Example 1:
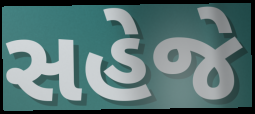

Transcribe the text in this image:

સહેજે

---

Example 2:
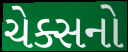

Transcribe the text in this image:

ચેક્સનો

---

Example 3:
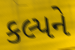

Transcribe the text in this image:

કલ્પને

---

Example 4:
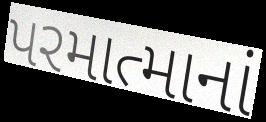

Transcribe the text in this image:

પરમાત્માનાં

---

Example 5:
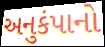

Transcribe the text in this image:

અનુકંપાનો